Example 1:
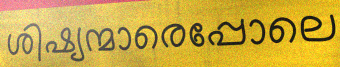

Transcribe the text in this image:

ശിഷ്യന്മാരെപ്പോലെ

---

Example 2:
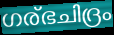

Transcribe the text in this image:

ഗര്ഭചിദ്രം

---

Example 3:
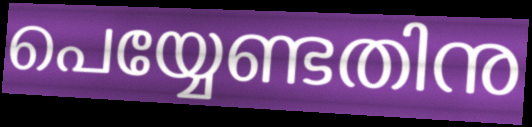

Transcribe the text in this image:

പെയ്യേണ്ടതിനു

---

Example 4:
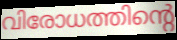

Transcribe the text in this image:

വിരോധത്തിന്റെ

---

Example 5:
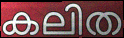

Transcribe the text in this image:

കലിത